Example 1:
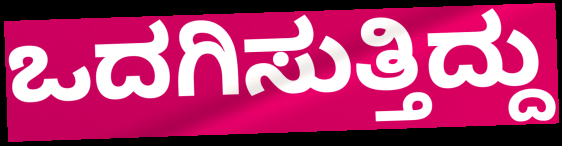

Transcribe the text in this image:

ಒದಗಿಸುತ್ತಿದ್ದು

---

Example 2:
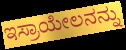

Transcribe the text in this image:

ಇಸ್ರಾಯೇಲನನ್ನು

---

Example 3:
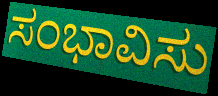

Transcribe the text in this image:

ಸಂಭಾವಿಸು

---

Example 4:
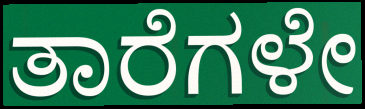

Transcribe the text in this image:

ತಾರೆಗಳೇ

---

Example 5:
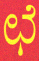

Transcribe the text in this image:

ಛೆ